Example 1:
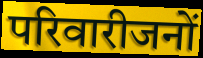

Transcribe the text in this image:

परिवारीजनों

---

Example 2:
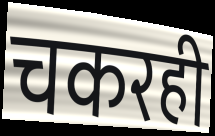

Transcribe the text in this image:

चकरही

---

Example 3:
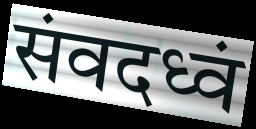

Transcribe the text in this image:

संवदध्वं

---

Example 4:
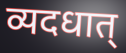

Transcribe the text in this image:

व्यदधात्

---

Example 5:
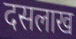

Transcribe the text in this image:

दसलाख